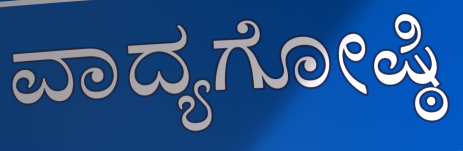
ವಾದ್ಯಗೋಷ್ಠಿ